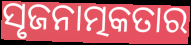
ସୃଜନାତ୍ମକତାର